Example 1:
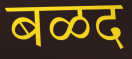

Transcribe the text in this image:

बळद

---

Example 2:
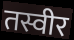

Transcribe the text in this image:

तस्वीर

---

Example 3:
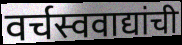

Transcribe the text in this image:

वर्चस्ववाद्यांची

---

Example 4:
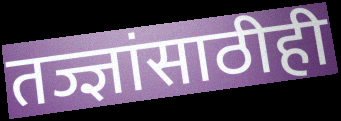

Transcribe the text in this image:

तज्ज्ञांसाठीही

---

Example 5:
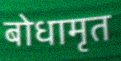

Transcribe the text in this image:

बोधामृत